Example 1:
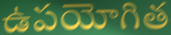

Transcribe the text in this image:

ఉపయోగిత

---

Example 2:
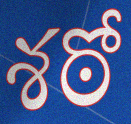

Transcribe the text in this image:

శఠో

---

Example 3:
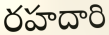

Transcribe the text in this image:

రహదారి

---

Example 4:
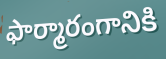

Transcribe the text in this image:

ఫార్మారంగానికి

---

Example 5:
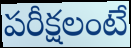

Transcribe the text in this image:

పరీక్షలంటే